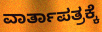
ವಾರ್ತಾಪತ್ರಕ್ಕೆ